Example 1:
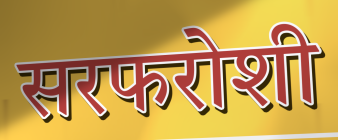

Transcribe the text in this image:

सरफरोशी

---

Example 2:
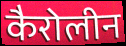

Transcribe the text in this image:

कैरोलीन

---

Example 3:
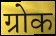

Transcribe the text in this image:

ग्रोक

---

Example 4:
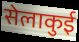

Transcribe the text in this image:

सेलाकुई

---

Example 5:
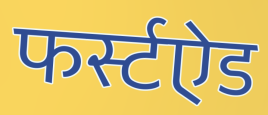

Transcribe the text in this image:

फर्स्टऐड